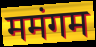
ममंगम